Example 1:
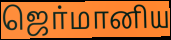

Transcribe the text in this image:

ஜெர்மானிய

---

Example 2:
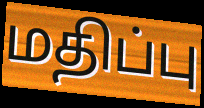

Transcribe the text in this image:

மதிப்பு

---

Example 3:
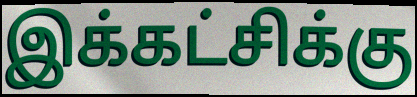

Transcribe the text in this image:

இக்கட்சிக்கு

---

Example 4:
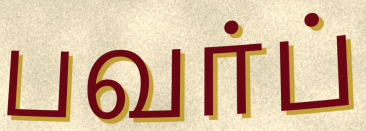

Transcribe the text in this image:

பவர்ப்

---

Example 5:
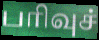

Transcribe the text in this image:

பரிவுச்